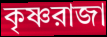
কৃষ্ণরাজা